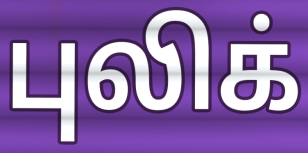
புலிக்